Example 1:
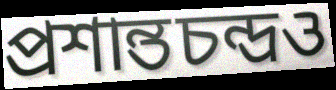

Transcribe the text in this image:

প্রশান্তচন্দ্রও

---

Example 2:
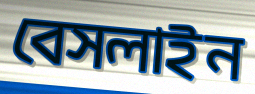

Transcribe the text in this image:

বেসলাইন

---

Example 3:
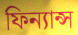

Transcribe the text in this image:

ফিন্যান্স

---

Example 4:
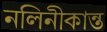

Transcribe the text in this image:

নলিনীকান্ত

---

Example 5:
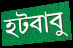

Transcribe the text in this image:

হটবাবু